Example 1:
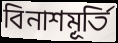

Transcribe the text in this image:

বিনাশমূর্তি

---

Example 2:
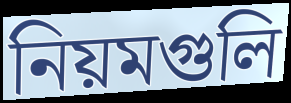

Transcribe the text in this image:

নিয়মগুলি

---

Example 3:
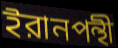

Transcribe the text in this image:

ইরানপন্থী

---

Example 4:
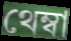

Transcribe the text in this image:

থেম্বা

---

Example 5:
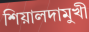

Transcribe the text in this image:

শিয়ালদামুখী